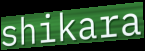
shikara